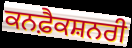
ਕਨਫ਼ੈਕਸ਼ਨਰੀ